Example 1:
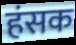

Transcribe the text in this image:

हंसक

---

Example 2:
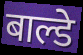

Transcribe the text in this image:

बाल्डे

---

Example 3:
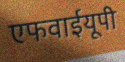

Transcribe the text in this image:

एफवाईयूपी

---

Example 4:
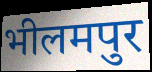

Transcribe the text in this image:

भीलमपुर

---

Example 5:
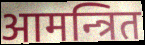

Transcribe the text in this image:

आमन्त्रित